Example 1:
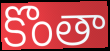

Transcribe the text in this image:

కొంతా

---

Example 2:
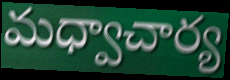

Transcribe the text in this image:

మధ్వాచార్య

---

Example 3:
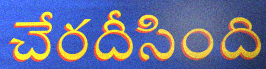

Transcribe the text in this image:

చేరదీసింది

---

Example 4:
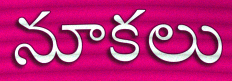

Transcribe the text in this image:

నూకలు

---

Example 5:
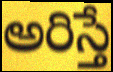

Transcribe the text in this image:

అరిస్తే